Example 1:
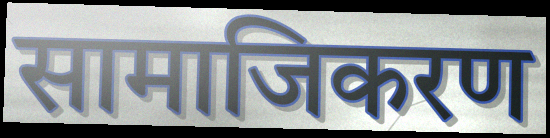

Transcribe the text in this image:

सामाजिकरण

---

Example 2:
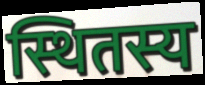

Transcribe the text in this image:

स्थितस्य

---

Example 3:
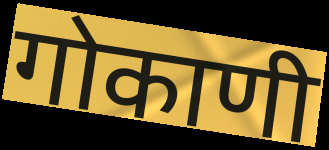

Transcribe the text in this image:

गोकाणी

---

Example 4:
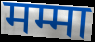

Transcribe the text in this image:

मम्मा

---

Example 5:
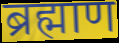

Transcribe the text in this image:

ब्रह्माण